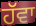
ਹੱਵਾ